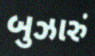
બુઝારું